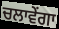
ਚਲਾਵੇਂਗਾ